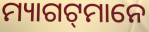
ମ୍ୟାଗଟ୍‌ମାନେ